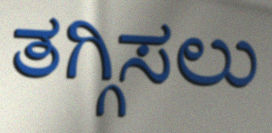
ತಗ್ಗಿಸಲು